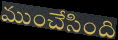
ముంచేసింది